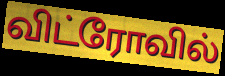
விட்ரோவில்